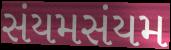
સંયમસંયમ